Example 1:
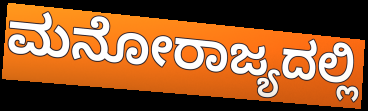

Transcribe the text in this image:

ಮನೋರಾಜ್ಯದಲ್ಲಿ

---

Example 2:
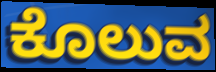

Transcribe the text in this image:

ಕೊಲುವ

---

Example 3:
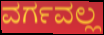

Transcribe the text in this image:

ವರ್ಗವಲ್ಲ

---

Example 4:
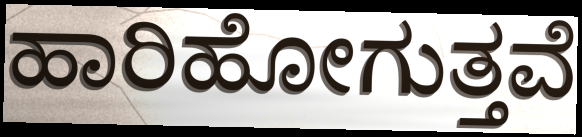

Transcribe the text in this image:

ಹಾರಿಹೋಗುತ್ತವೆ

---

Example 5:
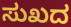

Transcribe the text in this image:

ಸುಖದ